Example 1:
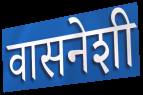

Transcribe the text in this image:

वासनेशी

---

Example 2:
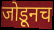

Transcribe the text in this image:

जोडूनच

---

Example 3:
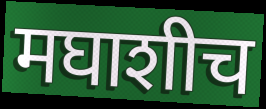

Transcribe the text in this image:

मघाशीच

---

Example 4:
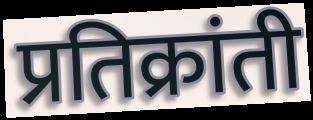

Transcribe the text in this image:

प्रतिक्रांती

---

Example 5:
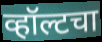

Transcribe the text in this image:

व्हॉल्टचा